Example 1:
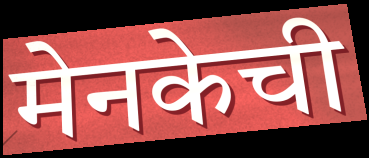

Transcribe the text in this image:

मेनकेची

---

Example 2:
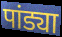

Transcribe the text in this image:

पांड्या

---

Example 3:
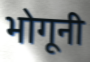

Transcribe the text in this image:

भोगूनी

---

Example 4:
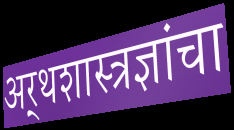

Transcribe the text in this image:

अर्थशास्त्रज्ञांचा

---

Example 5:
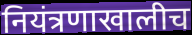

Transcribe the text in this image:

नियंत्रणाखालीच